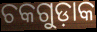
ଚକଗୁଡ଼ାକ